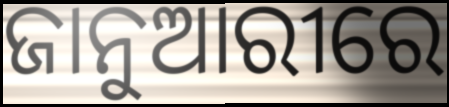
ଜାନୁଆରୀରେ